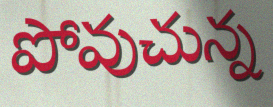
పోవుచున్న